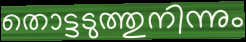
തൊട്ടടുത്തുനിന്നും